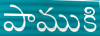
పాముకి